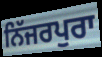
ਨਿੱਜਰਪੁਰਾ